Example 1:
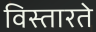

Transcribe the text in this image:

विस्तारते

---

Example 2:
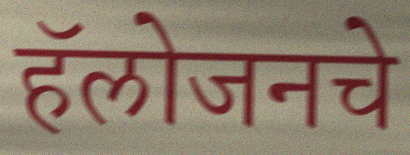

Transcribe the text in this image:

हॅलोजनचे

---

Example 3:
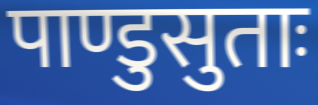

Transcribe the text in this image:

पाण्डुसुताः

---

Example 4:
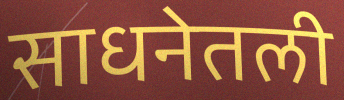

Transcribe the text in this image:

साधनेतली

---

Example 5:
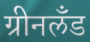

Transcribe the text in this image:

ग्रीनलँड